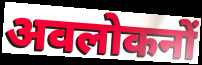
अवलोकनों